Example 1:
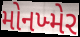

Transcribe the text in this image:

મોનખ્મેર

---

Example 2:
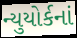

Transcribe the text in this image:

ન્યુયોર્કનાં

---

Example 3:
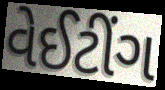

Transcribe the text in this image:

વેઈટીંગ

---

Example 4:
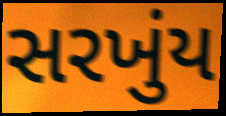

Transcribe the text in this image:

સરખુંય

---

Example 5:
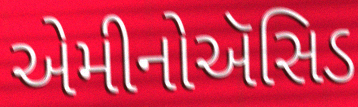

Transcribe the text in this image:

એમીનોઍસિડ